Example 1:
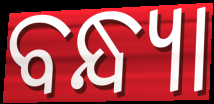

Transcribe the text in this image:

ବନ୍ଧ୍ୟା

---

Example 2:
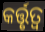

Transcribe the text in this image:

କର୍ତ୍ତୃତ୍ଵ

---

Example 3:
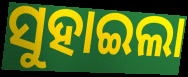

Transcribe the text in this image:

ସୁହାଇଲା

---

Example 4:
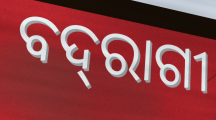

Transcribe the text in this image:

ବଦ୍‌ରାଗୀ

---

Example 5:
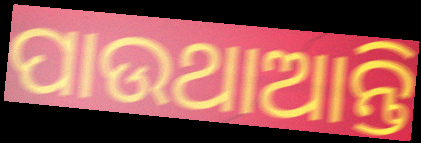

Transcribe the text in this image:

ପାଉଥାଆନ୍ତି